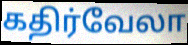
கதிர்வேலா